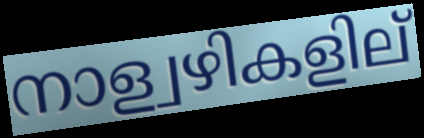
നാള്വഴികളില്